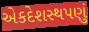
એકદેશસ્થપણું